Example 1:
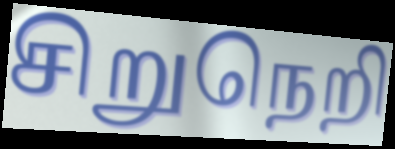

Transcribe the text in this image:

சிறுநெறி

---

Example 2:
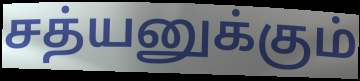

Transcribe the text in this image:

சத்யனுக்கும்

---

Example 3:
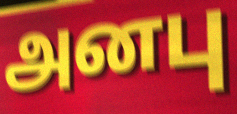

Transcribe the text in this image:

அனபு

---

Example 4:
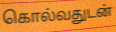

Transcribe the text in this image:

கொல்வதுடன்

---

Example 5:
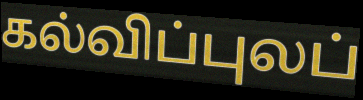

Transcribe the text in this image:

கல்விப்புலப்